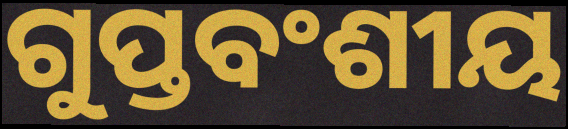
ଗୁପ୍ତବଂଶୀୟ